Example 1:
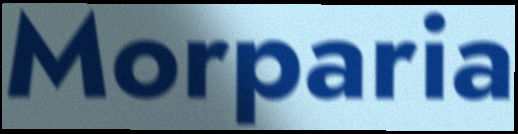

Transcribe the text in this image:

Morparia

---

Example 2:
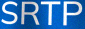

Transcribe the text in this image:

SRTP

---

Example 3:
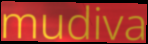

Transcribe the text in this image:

mudiva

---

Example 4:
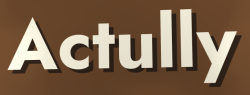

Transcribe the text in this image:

Actully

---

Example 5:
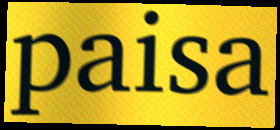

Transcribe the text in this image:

paisa